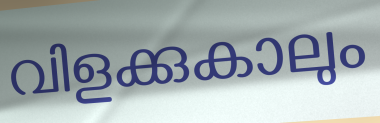
വിളക്കുകാലും